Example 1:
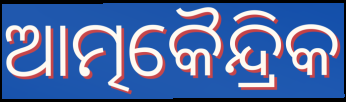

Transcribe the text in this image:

ଆତ୍ମକୈନ୍ଦ୍ରିକ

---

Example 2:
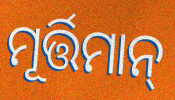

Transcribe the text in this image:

ମୂର୍ତ୍ତିମାନ୍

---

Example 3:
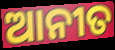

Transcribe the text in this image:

ଆନୀତ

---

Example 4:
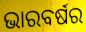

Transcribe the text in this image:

ଭାରବର୍ଷର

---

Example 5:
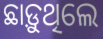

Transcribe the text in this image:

ଛାଡ଼ୁଥିଲେ